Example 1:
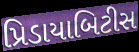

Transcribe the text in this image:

પ્રિડાયાબિટીસ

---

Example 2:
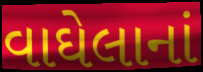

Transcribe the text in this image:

વાઘેલાનાં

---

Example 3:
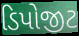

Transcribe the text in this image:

ડિપોજીટ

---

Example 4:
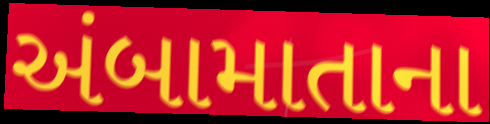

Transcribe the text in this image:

અંબામાતાના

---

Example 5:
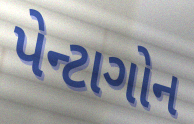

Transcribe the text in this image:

પેન્ટાગોન